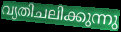
വ്യതിചലിക്കുന്നു